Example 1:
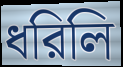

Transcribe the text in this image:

ধরিলি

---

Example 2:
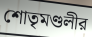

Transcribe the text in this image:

শোতৃমণ্ডলীর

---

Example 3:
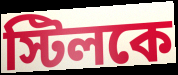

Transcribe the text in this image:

স্টিলকে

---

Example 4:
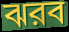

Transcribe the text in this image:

ঝরব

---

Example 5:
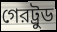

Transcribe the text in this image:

গেরট্রুড